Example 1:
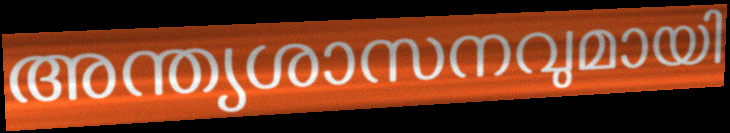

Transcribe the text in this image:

അന്ത്യശാസനവുമായി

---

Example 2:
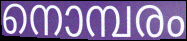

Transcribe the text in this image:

നൊമ്പരം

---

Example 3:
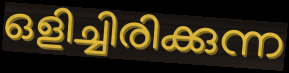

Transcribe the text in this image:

ഒളിച്ചിരിക്കുന്ന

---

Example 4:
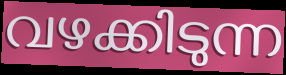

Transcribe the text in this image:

വഴക്കിടുന്ന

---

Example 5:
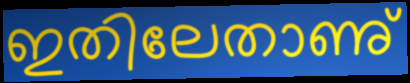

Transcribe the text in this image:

ഇതിലേതാണു്